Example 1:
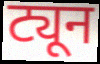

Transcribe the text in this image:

ट्यून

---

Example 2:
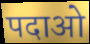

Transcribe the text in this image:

पदाओ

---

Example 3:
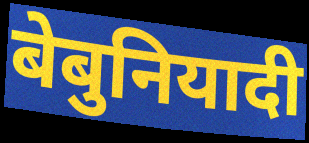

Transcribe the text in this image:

बेबुनियादी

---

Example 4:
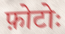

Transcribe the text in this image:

फ़ोटोः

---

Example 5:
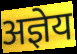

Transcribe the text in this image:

अज्ञेय